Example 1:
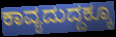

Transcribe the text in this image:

ಕಾವ್ಯದುದ್ದಕ್ಕೂ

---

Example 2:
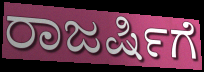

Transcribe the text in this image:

ರಾಜರ್ಷಿಗೆ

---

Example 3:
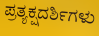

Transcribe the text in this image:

ಪ್ರತ್ಯಕ್ಷದರ್ಶಿಗಳು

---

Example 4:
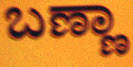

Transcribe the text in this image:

ಬಣ್ಣಾ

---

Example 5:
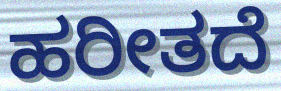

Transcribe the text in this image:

ಹರೀತದೆ